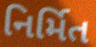
નિર્મિત